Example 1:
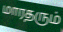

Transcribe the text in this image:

மாரதரும்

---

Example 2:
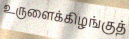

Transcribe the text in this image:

உருளைக்கிழங்குத்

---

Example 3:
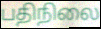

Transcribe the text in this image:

பதிநிலை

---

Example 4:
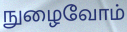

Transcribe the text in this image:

நுழைவோம்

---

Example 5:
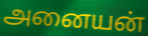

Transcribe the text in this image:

அனையன்